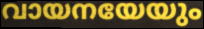
വായനയേയും